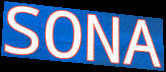
SONA